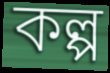
কল্প